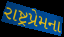
રાષ્ટ્રપ્રેમના